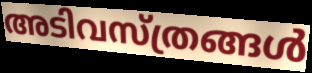
അടിവസ്ത്രങ്ങൾ